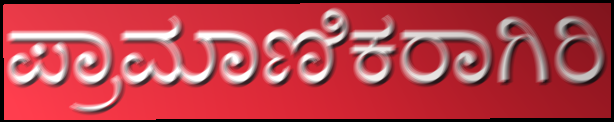
ಪ್ರಾಮಾಣಿಕರಾಗಿರಿ